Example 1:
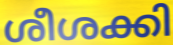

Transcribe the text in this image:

ശീശക്കി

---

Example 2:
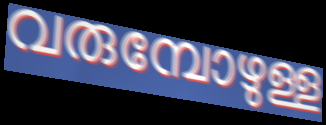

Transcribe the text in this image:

വരുമ്പോഴുള്ള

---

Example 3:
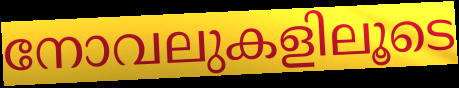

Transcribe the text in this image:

നോവലുകളിലൂടെ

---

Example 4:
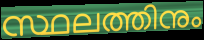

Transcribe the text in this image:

സ്ഥലത്തിനും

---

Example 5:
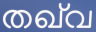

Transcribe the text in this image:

തഖ്‌വ